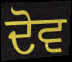
ਦੋਵ